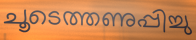
ചൂടെത്തണുപ്പിച്ചു